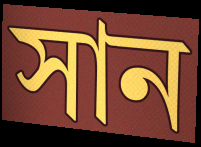
সান